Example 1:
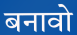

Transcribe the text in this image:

बनावो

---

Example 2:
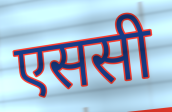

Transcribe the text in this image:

एससी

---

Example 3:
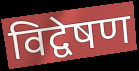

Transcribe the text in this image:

विद्वेषण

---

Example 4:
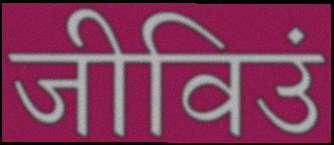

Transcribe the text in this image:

जीविउं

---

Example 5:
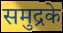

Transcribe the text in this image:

समुद्रके